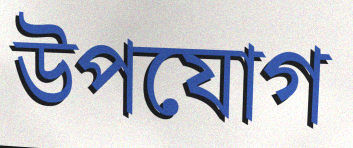
উপযোগ